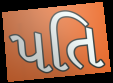
પતિ